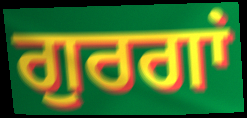
ਗੁਰਗਾਂ